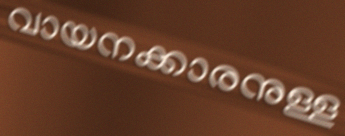
വായനക്കാരനുള്ള